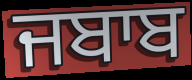
ਜਬਾਬ